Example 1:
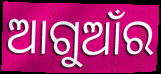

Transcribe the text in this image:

ଆଗୁଆଁର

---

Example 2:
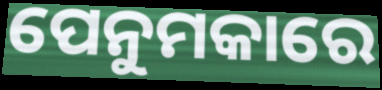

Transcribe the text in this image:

ପେନୁମକାରେ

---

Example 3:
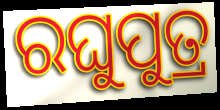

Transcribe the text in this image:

ରଘୁପୁତ୍ର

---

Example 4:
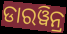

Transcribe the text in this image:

ଡାରୱିନ୍ର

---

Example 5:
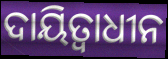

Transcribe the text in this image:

ଦାୟିତ୍ୱାଧୀନ